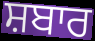
ਸ਼ਬਾਰ